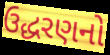
ઉદ્ધરણનો